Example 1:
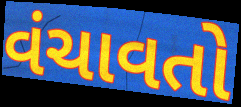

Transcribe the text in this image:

વંચાવતો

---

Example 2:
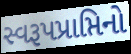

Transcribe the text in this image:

સ્વરૂપપ્રાપ્તિનો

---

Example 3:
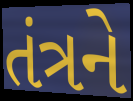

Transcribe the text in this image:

તંત્રને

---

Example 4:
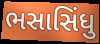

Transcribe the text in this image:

ભસાસિંધુ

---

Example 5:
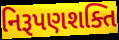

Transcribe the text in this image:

નિરૂપણશક્તિ